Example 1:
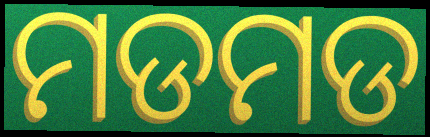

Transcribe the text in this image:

ମଡମଡ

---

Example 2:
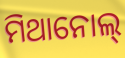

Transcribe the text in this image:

ମିଥାନୋଲ୍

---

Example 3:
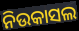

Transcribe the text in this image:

ନିଉକାସଲ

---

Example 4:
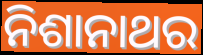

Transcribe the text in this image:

ନିଶାନାଥର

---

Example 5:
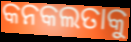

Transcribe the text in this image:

କନକଲତାକୁ